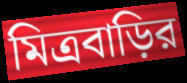
মিত্রবাড়ির